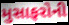
મુસાફરોની